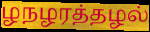
ழநழரத்தழல்